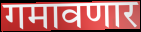
गमावणार